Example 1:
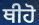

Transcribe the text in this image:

ਥੀਹੋ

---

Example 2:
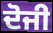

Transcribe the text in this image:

ਦੋਜੀ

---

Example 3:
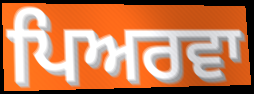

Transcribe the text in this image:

ਪਿਅਰਵਾ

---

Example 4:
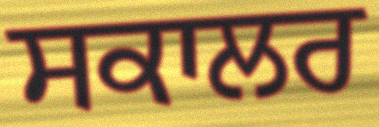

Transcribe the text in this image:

ਸਕਾਲਰ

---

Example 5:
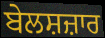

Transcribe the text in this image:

ਬੇਲਸ਼ਜ਼ਾਰ